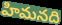
హిమనది